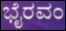
ಭೈರವಂ